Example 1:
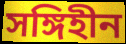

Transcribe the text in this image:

সঙ্গিহীন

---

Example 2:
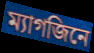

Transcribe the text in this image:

ম্যাগজিনে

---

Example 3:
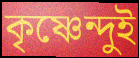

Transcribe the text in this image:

কৃষ্ণেন্দুই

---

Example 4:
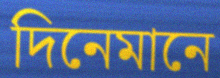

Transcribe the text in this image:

দিনেমানে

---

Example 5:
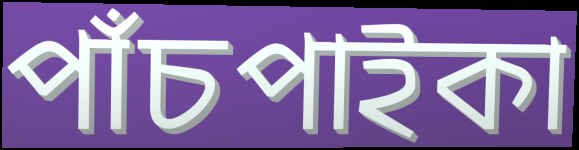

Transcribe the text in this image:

পাঁচপাইকা